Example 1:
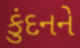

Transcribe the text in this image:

કુંદનને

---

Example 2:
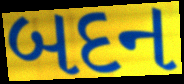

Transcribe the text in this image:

બદન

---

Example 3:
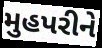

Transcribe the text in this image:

મુહપરીને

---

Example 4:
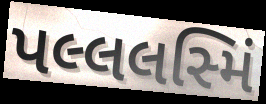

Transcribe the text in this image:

પલ્લલસ્મિં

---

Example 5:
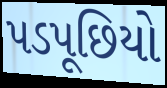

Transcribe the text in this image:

પડપૂછિયો